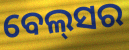
ବେଲ୍‌ସର